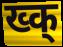
ख्क्